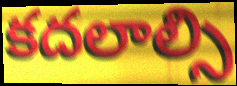
కదలాల్సి